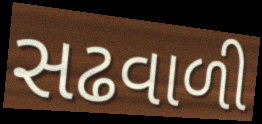
સઢવાળી